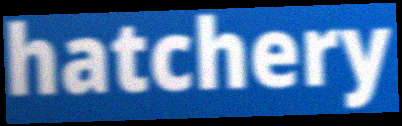
hatchery